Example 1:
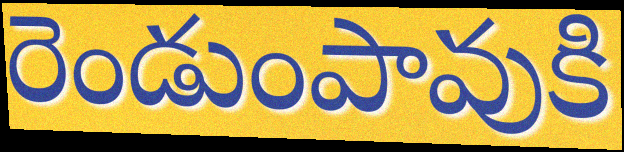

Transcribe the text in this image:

రెండుంపావుకి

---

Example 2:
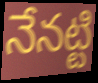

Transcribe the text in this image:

నేనట్టి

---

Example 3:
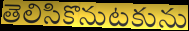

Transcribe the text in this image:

తెలిసికొనుటకును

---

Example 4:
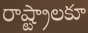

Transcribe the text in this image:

రాష్ట్రాలకూ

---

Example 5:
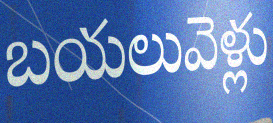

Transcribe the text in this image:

బయలువెళ్లు